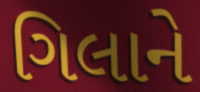
ગિલાને